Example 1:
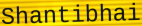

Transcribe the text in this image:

Shantibhai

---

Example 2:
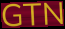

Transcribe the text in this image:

GTN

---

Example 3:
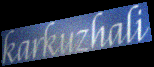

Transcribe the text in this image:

karkuzhali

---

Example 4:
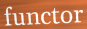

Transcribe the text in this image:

functor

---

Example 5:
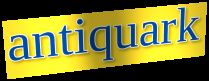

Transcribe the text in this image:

antiquark